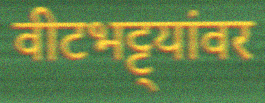
वीटभट्ट्यांवर